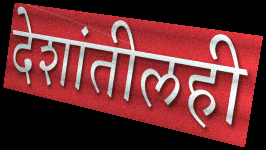
देशांतीलही